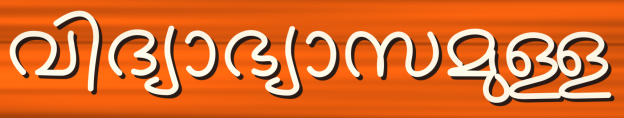
വിദ്യാഭ്യാസമുള്ള